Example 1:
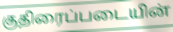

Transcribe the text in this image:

குதிரைப்படையின்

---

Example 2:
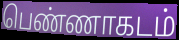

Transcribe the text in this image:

பெண்ணாகடம்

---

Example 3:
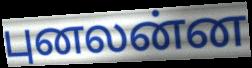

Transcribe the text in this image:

புனலன்ன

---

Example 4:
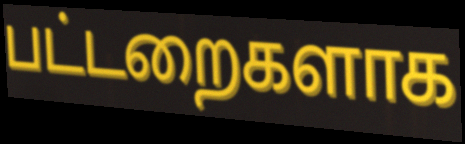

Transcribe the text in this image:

பட்டறைகளாக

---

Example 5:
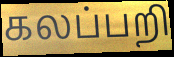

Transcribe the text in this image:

கலப்பறி